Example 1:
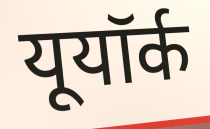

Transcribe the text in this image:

यूयॉर्क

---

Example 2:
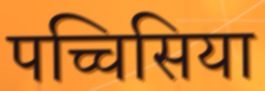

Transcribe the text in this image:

पच्चिसिया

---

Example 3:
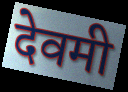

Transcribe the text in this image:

देवमी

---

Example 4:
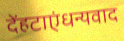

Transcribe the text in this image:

देंहटाएंधन्यवाद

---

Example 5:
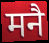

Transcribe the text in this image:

मनै